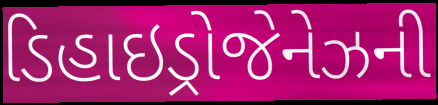
ડિહાઇડ્રોજેનેઝની